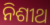
ନିଶୀଥ